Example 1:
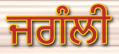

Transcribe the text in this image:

ਜਗੰਲੀ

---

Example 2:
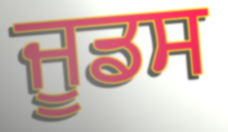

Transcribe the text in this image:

ਜੂਡਸ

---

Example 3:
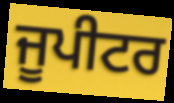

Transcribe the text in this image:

ਜੂਪੀਟਰ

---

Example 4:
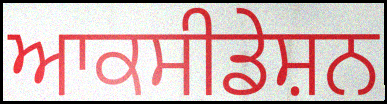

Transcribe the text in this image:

ਆਕਸੀਡੇਸ਼ਨ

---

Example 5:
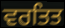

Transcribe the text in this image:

ਵਰਤਿਤ